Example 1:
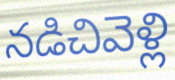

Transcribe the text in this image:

నడిచివెళ్లి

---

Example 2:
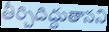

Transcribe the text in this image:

తీర్చిదిద్దుతానని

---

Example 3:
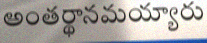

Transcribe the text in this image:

అంతర్థానమయ్యారు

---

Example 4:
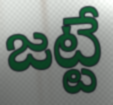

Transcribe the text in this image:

జట్టే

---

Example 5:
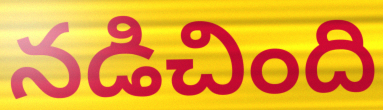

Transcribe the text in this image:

నడిచింది